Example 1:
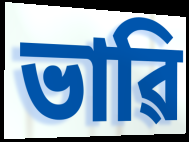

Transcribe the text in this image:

ভাৱি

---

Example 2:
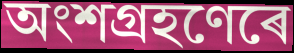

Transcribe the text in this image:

অংশগ্ৰহণেৰে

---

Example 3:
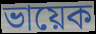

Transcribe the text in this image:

ভায়েক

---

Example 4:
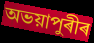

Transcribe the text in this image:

অভয়াপুৰীৰ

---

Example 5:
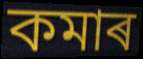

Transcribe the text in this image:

কমাৰ